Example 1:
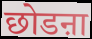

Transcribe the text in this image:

छोडऩा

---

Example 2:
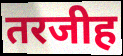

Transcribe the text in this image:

तरजीह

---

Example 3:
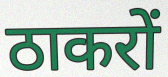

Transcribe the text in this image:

ठाकरों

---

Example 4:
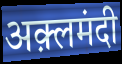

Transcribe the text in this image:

अक़्लमंदी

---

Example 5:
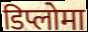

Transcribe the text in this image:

डिप्लोमा